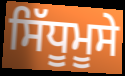
ਸਿੱਧੂਮੂਸੇ